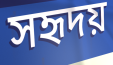
সহৃদয়